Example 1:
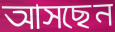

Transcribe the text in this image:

আসছেন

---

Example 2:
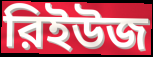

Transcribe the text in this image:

রিইউজ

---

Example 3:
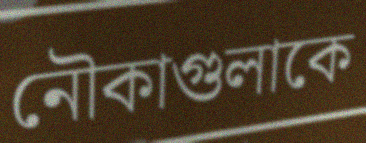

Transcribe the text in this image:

নৌকাগুলাকে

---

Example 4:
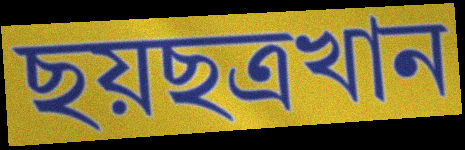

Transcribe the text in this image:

ছয়ছত্রখান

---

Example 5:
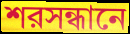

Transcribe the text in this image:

শরসন্ধানে